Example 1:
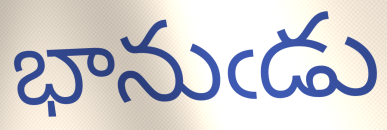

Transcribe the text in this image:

భానుఁడు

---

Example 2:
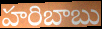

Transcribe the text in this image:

హరిబాబు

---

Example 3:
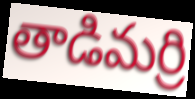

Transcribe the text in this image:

తాడిమర్రి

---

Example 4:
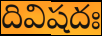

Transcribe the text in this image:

దివిషదః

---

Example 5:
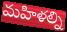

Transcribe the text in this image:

మహిళల్ని